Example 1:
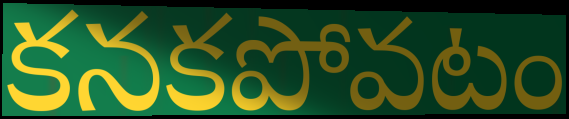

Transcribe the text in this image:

కనకపోవటం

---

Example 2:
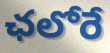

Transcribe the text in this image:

ఛలోరే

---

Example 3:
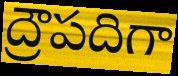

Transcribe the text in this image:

ద్రౌపదిగా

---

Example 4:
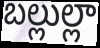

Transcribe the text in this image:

బల్లుల్లా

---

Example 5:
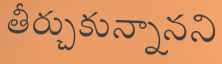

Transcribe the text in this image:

తీర్చుకున్నానని